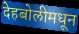
देहबोलीमधून